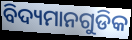
ବିଦ୍ୟମାନଗୁଡିକ